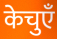
केचुएँ